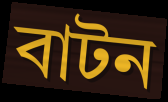
বাটন